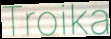
Troika